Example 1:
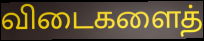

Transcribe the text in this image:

விடைகளைத்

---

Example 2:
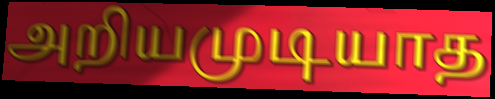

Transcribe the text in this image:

அறியமுடியாத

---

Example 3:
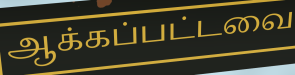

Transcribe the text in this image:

ஆக்கப்பட்டவை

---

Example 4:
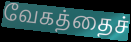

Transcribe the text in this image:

வேகத்தைச்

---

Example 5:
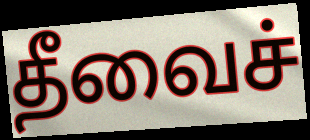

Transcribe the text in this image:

தீவைச்